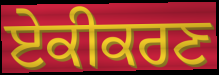
ਏਕੀਕਰਣ